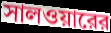
সালওয়ারের